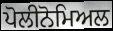
ਪੋਲੀਨੋਮਿਅਲ